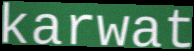
karwat